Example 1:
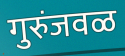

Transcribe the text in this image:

गुरुंजवळ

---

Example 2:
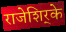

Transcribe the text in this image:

राजेशिर्के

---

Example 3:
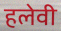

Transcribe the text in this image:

हलेवी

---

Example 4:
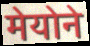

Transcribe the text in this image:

मेयोने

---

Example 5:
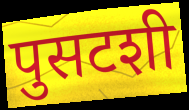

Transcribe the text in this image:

पुसटशी